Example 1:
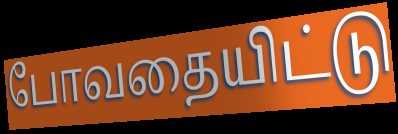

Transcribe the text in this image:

போவதையிட்டு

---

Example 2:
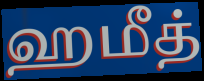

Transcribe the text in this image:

ஹமீத்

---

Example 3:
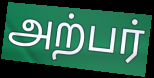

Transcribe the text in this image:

அற்பர்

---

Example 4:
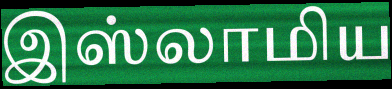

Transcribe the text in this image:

இஸ்லாமிய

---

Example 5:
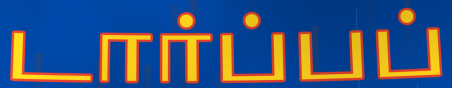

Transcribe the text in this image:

டார்ப்பப்